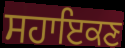
ਸਹਾਇਕਣ